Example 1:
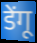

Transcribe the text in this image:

डेंगू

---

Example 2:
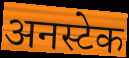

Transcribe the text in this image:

अनस्टेक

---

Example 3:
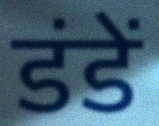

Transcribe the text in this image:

डंडें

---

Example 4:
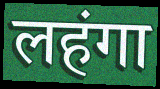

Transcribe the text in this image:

लहंगा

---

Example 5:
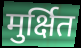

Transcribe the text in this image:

मुर्क्षित